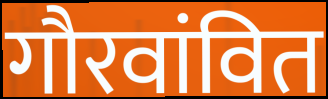
गौरवांवित